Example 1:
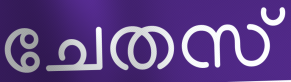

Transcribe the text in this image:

ചേതസ്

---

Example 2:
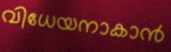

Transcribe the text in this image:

വിധേയനാകാൻ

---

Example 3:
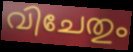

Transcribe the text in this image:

വിചേതും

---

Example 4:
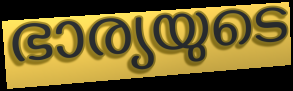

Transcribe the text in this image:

ഭാര്യയുടെ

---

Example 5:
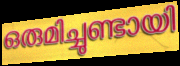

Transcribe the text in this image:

ഒരുമിച്ചുണ്ടായി